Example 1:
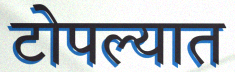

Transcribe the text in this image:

टोपल्यात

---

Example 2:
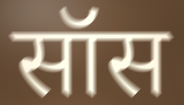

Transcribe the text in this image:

सॉस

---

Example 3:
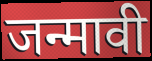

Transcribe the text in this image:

जन्मावी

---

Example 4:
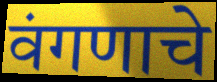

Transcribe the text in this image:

वंगणाचे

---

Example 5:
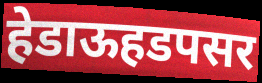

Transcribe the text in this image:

हेडाऊहडपसर